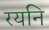
रयनि